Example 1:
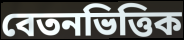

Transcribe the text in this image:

বেতনভিত্তিক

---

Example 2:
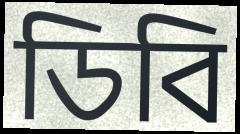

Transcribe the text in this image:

ডিবি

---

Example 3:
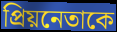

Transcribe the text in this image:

প্রিয়নেতাকে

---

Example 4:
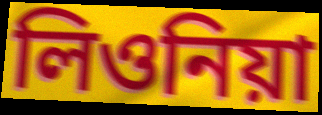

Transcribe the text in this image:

লিওনিয়া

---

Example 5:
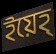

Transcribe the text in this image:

ইয়েহ্